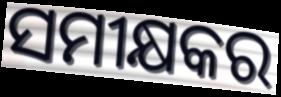
ସମୀକ୍ଷକର